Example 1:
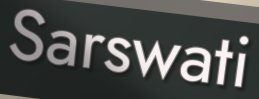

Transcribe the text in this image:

Sarswati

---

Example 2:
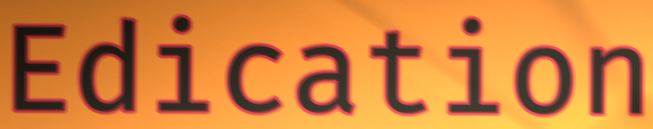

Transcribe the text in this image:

Edication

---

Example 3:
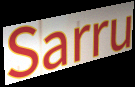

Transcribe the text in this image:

Sarru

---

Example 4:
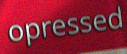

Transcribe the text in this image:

opressed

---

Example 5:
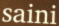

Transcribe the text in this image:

saini